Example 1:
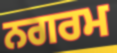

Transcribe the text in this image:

ਨਗਰਮ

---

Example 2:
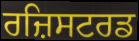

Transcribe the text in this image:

ਰਜ਼ਿਸਟਰਡ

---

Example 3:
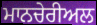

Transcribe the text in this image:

ਮਾਨਚੇਰੀਅਲ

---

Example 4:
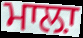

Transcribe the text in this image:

ਮਾਲ਼ਾ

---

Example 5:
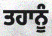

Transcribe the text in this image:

ਤਹਾਨੂੰ